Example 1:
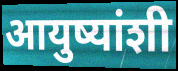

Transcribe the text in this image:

आयुष्यांशी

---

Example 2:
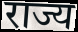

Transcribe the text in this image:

राज्य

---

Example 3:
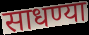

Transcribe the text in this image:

साधण्या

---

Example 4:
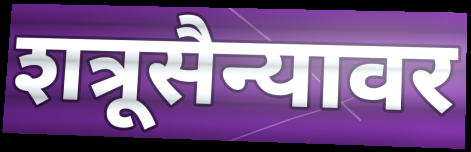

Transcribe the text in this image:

शत्रूसैन्यावर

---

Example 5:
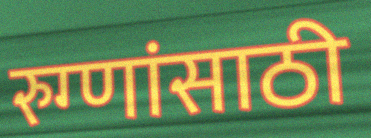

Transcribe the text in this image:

रुग्णांसाठी